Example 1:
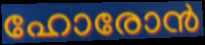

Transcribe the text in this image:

ഹോരോൻ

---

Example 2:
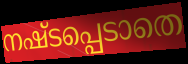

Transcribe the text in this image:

നഷ്ടപ്പെടാതെ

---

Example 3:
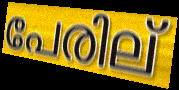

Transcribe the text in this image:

പേരില്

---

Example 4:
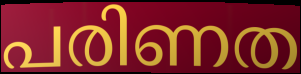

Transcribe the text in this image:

പരിണത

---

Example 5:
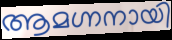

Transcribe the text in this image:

ആമഗ്നനായി